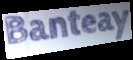
Banteay